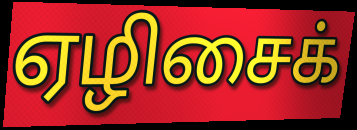
ஏழிசைக்